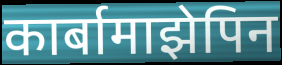
कार्बामाझेपिन